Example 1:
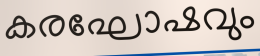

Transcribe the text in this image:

കരഘോഷവും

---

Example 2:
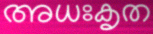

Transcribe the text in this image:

അധഃകൃത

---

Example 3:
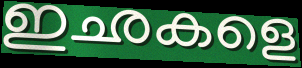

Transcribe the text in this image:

ഇഛകളെ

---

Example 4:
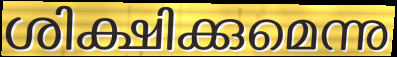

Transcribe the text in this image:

ശിക്ഷിക്കുമെന്നു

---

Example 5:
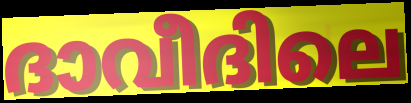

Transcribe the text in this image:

ദാവീദിലെ